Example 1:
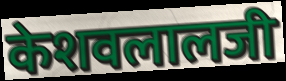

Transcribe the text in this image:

केशवलालजी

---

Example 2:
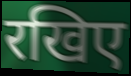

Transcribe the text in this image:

रखिए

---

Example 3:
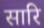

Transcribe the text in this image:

सारि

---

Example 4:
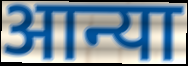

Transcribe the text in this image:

आन्या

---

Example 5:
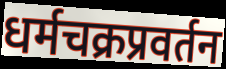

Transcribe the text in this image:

धर्मचक्रप्रवर्तन